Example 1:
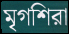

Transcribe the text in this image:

মৃগশিরা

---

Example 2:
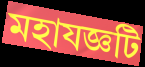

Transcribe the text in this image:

মহাযজ্ঞটি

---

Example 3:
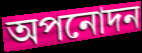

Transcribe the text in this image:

অপনোদন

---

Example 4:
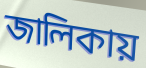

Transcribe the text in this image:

জালিকায়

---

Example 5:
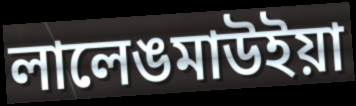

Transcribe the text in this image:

লালেঙমাউইয়া